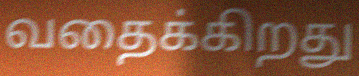
வதைக்கிறது